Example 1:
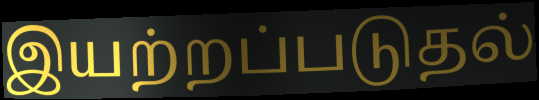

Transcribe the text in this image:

இயற்றப்படுதல்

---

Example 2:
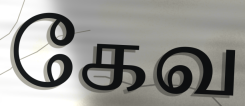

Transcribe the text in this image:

கேவ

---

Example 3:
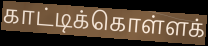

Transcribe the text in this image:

காட்டிக்கொள்ளக்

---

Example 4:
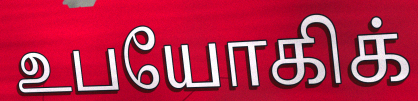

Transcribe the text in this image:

உபயோகிக்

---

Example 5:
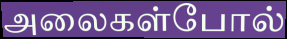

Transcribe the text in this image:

அலைகள்போல்